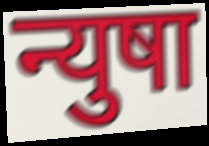
न्युषा